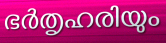
ഭർതൃഹരിയും